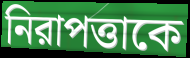
নিরাপত্তাকে